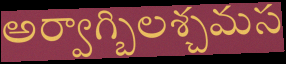
అర్వాగ్బిలశ్చమస